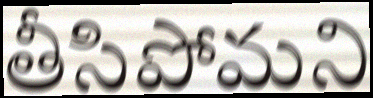
తీసిపోమని